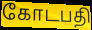
கோடபதி